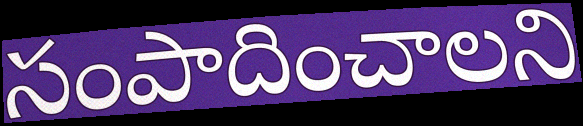
సంపాదించాలని